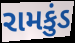
રામકુંડ